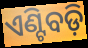
ଏଣ୍ଟିବଡ଼ି